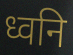
ध्वनि